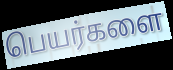
பெயர்களை